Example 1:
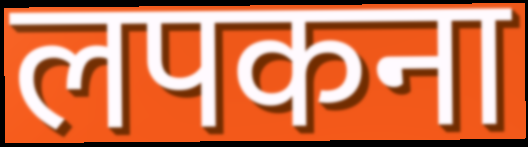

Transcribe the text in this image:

लपकना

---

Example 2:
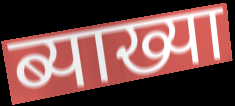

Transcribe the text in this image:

ब्याख्या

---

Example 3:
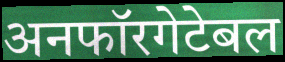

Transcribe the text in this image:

अनफॉरगेटेबल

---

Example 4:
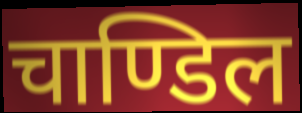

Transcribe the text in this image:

चाण्डिल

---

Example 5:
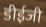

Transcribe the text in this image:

डीईजी